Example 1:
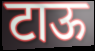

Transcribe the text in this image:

टाऊ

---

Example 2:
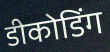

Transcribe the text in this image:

डीकोडिंग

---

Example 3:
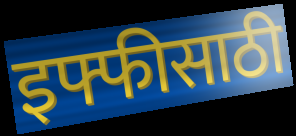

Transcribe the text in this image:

इफ्फीसाठी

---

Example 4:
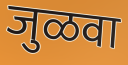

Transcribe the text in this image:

जुळवा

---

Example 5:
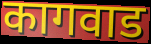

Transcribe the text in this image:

कागवाड